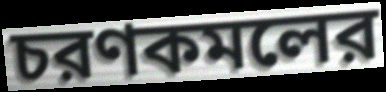
চরণকমলের